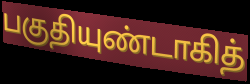
பகுதியுண்டாகித்